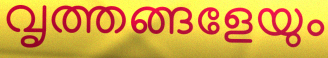
വൃത്തങ്ങളേയും